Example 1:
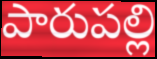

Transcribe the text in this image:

పారుపల్లి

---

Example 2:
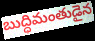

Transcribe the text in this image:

బుద్ధిమంతుడైన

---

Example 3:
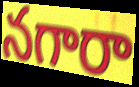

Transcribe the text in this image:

నగారా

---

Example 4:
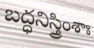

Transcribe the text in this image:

బద్ధనిస్త్రింశాః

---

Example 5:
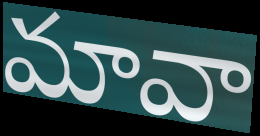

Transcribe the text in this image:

మావా